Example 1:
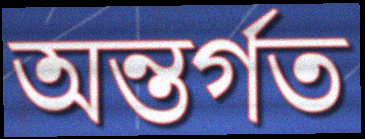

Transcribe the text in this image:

অন্তর্গত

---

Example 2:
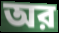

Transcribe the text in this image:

অর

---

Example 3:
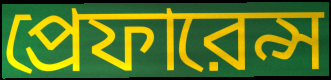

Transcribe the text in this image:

প্রেফারেন্স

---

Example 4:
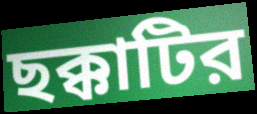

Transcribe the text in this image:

ছক্কাটির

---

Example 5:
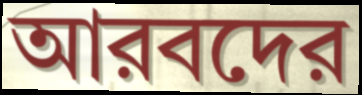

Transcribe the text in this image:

আরবদের